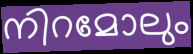
നിറമോലും